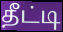
தீட்டி